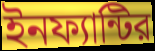
ইনফ্যান্টির